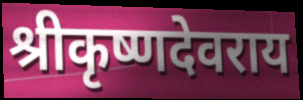
श्रीकृष्णदेवराय